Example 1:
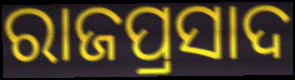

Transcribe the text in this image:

ରାଜପ୍ରସାଦ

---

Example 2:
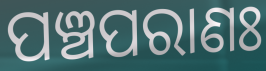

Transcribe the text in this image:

ପଞ୍ଚପରାଣଃ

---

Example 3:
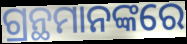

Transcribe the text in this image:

ଗ୍ରନ୍ଥମାନଙ୍କରେ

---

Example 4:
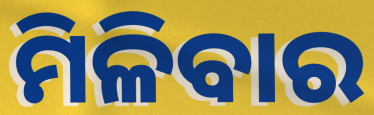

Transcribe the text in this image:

ମିଳିବାର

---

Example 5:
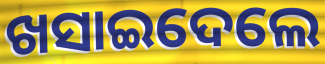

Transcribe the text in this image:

ଖସାଇଦେଲେ